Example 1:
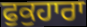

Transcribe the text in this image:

ਫੁਕੁਹਾਰਾ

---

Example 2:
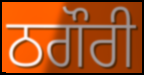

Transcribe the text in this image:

ਠਗੌਰੀ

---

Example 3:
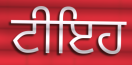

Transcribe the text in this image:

ਟੀਇਹ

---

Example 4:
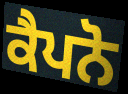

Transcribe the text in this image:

ਕੈਪਨੋ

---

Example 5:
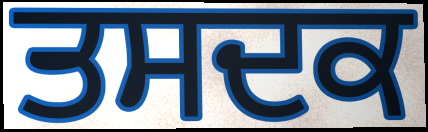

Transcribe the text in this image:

ਤਸਦਕ